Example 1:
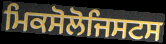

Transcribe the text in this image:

ਮਿਕਸੋਲੋਜਿਸਟਸ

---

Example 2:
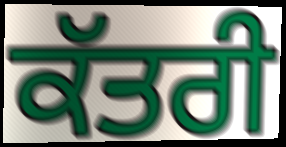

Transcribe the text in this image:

ਕੱਤਰੀ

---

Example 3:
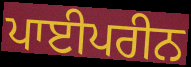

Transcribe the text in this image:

ਪਾਈਪਰੀਨ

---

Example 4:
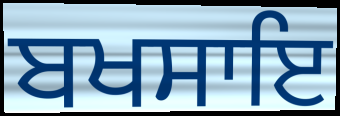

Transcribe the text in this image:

ਬਖਸਾਇ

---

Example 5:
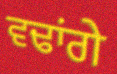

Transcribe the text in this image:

ਵਢਾਂਗੇ